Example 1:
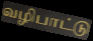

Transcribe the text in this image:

வழிபாட்டு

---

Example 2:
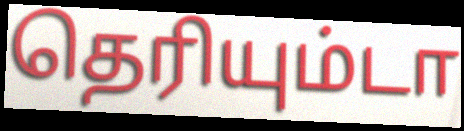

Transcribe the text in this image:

தெரியும்டா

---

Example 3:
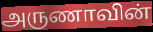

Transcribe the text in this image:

அருணாவின்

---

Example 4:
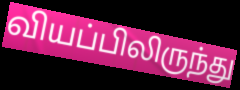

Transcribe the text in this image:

வியப்பிலிருந்து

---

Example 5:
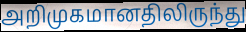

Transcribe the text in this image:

அறிமுகமானதிலிருந்து